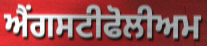
ਐਂਗਸਟੀਫੋਲੀਅਮ